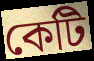
কেটি